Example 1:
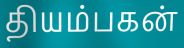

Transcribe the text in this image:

தியம்பகன்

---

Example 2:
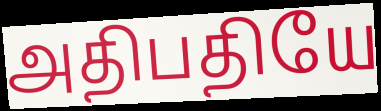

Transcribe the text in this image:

அதிபதியே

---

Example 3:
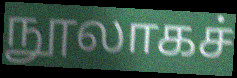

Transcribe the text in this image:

நூலாகச்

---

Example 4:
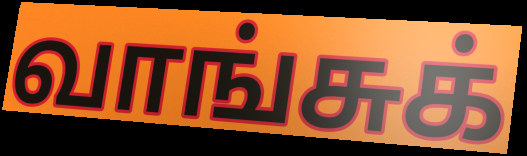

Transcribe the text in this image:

வாங்சுக்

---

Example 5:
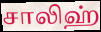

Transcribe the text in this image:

சாலிஹ்